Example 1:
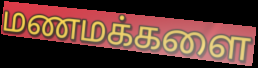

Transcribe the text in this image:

மணமக்களை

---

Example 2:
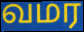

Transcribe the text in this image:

வமர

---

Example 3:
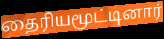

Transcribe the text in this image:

தைரியமூட்டினார்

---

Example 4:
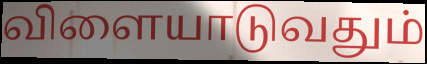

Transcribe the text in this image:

விளையாடுவதும்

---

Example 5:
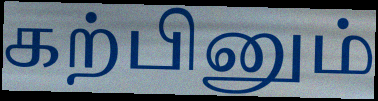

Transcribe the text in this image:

கற்பினும்